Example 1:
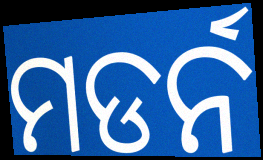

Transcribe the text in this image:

ମଡର୍ନ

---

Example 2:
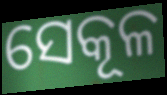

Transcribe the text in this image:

ସେକୂଳ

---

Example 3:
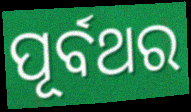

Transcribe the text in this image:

ପୂର୍ବଥର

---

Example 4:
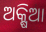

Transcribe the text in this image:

ଅକ୍ଷିଆ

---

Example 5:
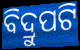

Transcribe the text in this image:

ବିଦ୍ରୁପଟି